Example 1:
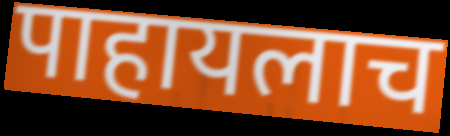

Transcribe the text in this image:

पाहायलाच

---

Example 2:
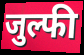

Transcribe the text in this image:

जुल्फी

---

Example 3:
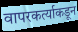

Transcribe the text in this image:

वापरकर्त्याकडून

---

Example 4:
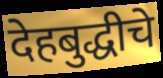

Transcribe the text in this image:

देहबुद्धीचे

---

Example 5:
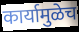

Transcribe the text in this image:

कार्यामुळेच